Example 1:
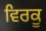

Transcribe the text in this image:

ਵਿਰਕੂ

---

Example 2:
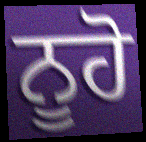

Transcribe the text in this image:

ਨੂਹੋ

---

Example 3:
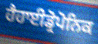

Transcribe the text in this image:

ਹੈਹਾਈਡ੍ਰੋਪੋਨਿਕ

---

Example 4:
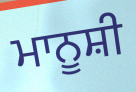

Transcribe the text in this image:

ਮਾਨੂਸ਼ੀ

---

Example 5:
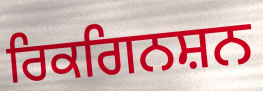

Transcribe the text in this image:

ਰਿਕਗਿਨਸ਼ਨ